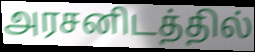
அரசனிடத்தில்